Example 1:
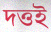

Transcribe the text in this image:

দত্তই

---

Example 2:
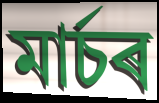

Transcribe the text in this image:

মাৰ্চৰ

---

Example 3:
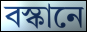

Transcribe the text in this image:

বস্কানে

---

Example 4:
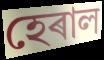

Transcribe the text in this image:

হেৰাল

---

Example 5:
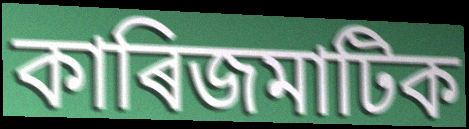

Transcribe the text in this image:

কাৰিজমাটিক